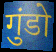
गुंडो